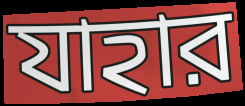
যাহার